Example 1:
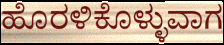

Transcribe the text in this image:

ಹೊರಳಿಕೊಳ್ಳುವಾಗ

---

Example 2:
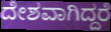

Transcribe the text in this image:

ದೇಶವಾಗಿದ್ದರೆ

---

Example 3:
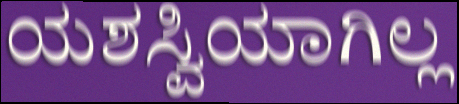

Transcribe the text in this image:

ಯಶಸ್ವಿಯಾಗಿಲ್ಲ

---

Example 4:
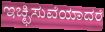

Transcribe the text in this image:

ಇಚ್ಛಿಸುವೆಯಾದರೆ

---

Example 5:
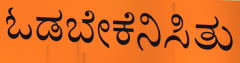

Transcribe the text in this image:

ಓಡಬೇಕೆನಿಸಿತು